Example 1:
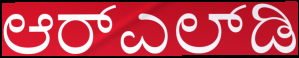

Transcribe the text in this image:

ಆರ್‌ಎಲ್‌ಡಿ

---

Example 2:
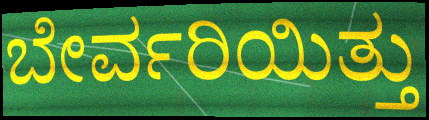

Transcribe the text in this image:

ಬೇರ್ವರಿಯಿತ್ತು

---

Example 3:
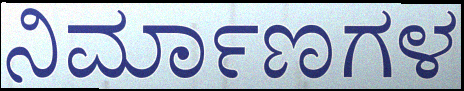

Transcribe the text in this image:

ನಿರ್ಮಾಣಗಳ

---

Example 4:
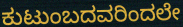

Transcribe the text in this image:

ಕುಟುಂಬದವರಿಂದಲೇ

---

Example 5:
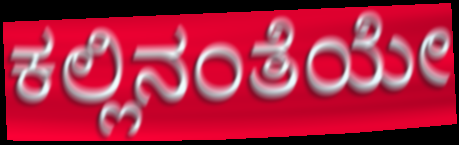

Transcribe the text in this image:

ಕಲ್ಲಿನಂತೆಯೇ